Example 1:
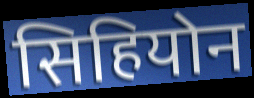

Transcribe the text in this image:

सिहियोन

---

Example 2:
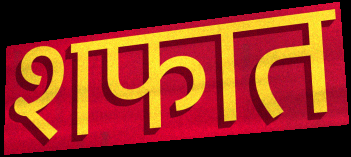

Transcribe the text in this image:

शफात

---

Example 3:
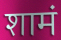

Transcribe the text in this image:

शामं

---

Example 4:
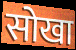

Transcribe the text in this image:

सोखा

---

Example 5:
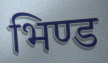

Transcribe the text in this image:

भिण्ड